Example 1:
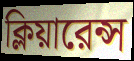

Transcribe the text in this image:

ক্লিয়ারেন্স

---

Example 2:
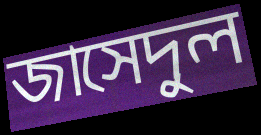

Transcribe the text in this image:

জাসেদুল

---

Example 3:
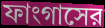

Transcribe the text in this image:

ফাংগাসের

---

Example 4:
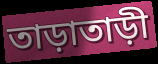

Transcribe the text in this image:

তাড়াতাড়ী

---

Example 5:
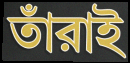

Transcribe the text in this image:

তাঁরাই